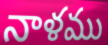
నాళము